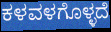
ಕಳವಳಗೊಳ್ಳದೆ